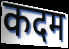
कदम